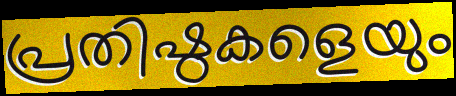
പ്രതിഷ്ഠകളെയും